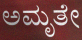
ಅಮೃತೇ